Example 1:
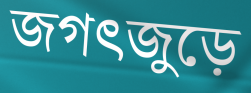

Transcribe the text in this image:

জগৎজুড়ে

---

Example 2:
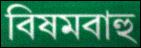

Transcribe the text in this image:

বিষমবাহু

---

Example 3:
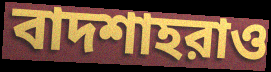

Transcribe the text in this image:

বাদশাহরাও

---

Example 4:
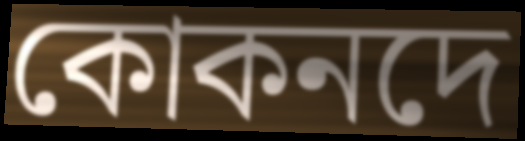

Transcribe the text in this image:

কোকনদে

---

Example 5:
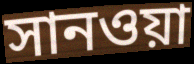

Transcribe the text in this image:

সানওয়া